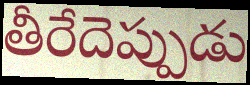
తీరేదెప్పుడు